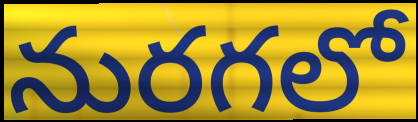
నురగలో